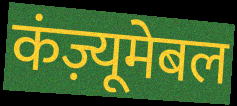
कंज़्यूमेबल